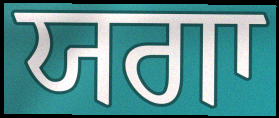
ਯਗਾ